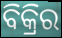
ବିକ୍ରିର